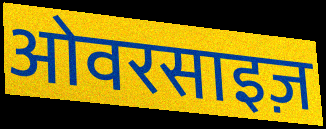
ओवरसाइज़